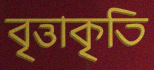
বৃত্তাকৃতি